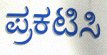
ಪ್ರಕಟಿಸಿ